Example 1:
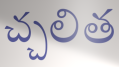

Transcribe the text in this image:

చ్చలిత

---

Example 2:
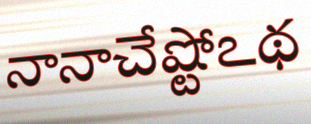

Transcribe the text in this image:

నానాచేష్టోఽథ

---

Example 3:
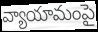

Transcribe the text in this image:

వ్యాయామంపై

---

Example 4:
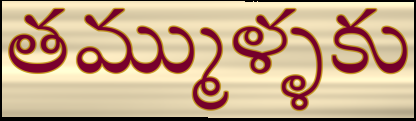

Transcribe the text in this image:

తమ్ముళ్ళకు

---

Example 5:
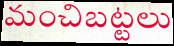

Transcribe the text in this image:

మంచిబట్టలు